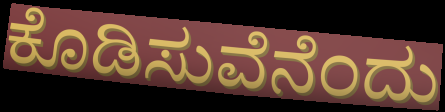
ಕೊಡಿಸುವೆನೆಂದು